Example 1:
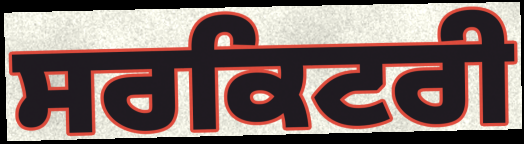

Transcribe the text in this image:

ਸਰਕਿਟਰੀ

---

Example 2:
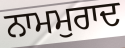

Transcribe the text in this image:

ਨਾਮਮੁਰਾਦ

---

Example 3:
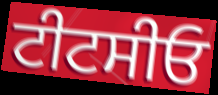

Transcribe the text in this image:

ਟੀਟਸੀਓ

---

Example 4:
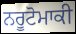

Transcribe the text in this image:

ਨਰੂਟੋਮਾਕੀ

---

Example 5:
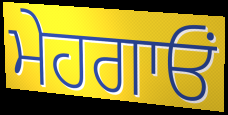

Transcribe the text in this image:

ਮੇਹਗਾਓਂ